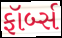
ફૉર્બ્સ